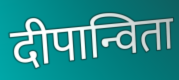
दीपान्विता